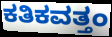
ಕತಿಕವತ್ತಂ